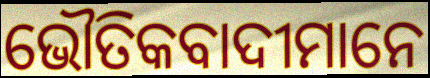
ଭୌତିକବାଦୀମାନେ